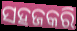
ସହଜକରି